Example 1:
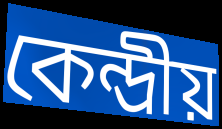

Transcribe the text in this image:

কেন্দ্ৰীয়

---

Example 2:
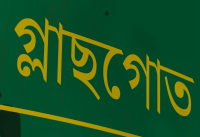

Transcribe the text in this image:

গ্লাছগোত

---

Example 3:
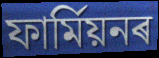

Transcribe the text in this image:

ফাৰ্মিয়নৰ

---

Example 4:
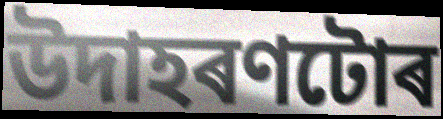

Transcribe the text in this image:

উদাহৰণটোৰ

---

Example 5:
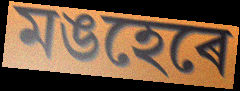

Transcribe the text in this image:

মঙহেৰে